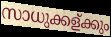
സാധുക്കള്ക്കും